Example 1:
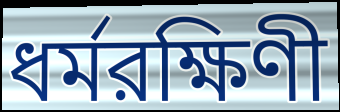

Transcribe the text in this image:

ধর্মরক্ষিণী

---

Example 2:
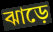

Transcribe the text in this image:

ঝাড়ে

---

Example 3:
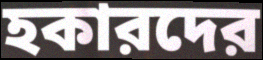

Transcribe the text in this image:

হকারদের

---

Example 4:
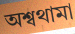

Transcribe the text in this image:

অশ্বথামা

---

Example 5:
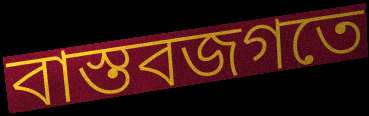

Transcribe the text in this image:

বাস্তবজগতে